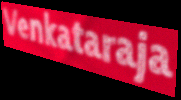
Venkataraja